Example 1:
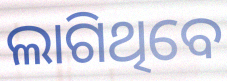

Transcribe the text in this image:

ଲାଗିଥିବେ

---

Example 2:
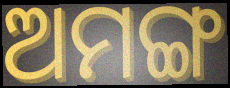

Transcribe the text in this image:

ଅମଙ୍ଗ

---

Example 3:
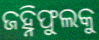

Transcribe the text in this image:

ଜହ୍ନିଫୁଲକୁ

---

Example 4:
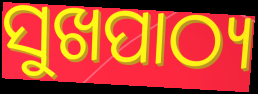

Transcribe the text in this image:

ସୁଖପାଠ୍ୟ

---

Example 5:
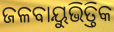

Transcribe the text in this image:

ଜଳବାୟୁଭିତ୍ତିକ